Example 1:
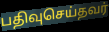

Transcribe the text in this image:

பதிவுசெய்தவர்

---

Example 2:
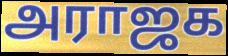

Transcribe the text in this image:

அராஜக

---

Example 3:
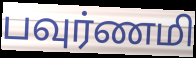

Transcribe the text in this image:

பவுர்ணமி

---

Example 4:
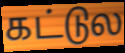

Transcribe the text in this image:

கட்டுல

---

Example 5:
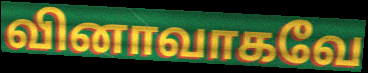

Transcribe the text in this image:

வினாவாகவே